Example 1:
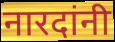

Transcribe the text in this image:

नारदांनी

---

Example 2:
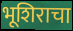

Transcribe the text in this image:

भूशिराचा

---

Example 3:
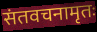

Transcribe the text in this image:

संतवचनामृतः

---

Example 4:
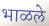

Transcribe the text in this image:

भाळले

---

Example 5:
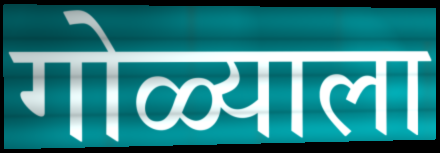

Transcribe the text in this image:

गोळ्याला